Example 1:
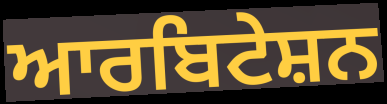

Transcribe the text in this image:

ਆਰਬਿਟੇਸ਼ਨ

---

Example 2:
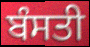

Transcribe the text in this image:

ਬੰਸਤੀ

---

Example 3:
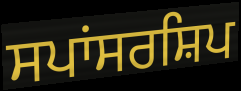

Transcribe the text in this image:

ਸਪਾਂਸਰਸ਼ਿਪ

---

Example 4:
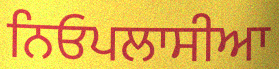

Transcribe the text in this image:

ਨਿਓਪਲਾਸੀਆ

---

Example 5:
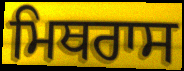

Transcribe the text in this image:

ਮਿਥਰਾਸ